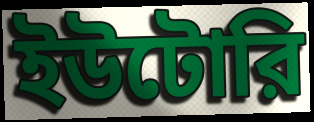
ইউটোরি